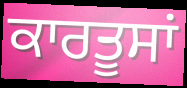
ਕਾਰਤੂਸਾਂ